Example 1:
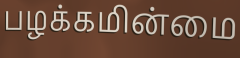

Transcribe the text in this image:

பழக்கமின்மை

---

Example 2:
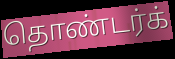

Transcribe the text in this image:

தொண்டர்க்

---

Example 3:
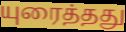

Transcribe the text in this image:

யுரைத்தது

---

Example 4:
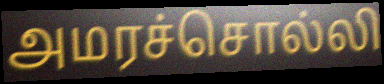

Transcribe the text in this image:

அமரச்சொல்லி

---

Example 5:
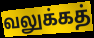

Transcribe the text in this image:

வலுக்கத்